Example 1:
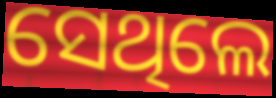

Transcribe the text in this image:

ସେଥିଲେ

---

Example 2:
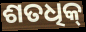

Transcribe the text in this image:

ଶତଧିକ୍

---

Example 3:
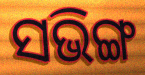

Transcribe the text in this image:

ସଭିଙ୍ଗ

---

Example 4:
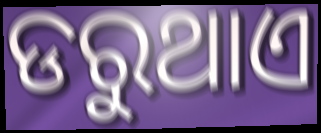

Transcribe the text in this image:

ଡରୁଥାଏ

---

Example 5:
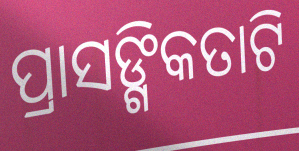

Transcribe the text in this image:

ପ୍ରାସଙ୍ଗିକତାଟି